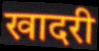
खादरी